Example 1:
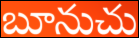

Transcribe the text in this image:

బూనుచు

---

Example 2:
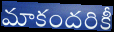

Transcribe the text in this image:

మాకందరికీ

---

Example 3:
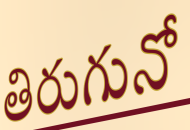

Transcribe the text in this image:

తిరుగునో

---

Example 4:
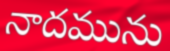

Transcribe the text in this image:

నాదమును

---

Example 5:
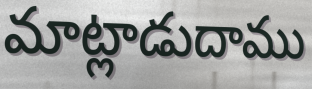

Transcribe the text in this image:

మాట్లాడుదాము